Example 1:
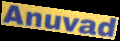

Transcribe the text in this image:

Anuvad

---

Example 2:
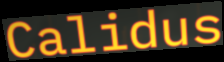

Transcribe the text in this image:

Calidus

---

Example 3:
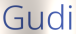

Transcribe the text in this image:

Gudi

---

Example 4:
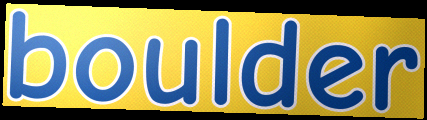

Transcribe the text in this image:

boulder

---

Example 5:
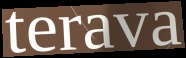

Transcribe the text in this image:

terava